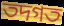
তদগত